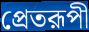
প্রেতরূপী